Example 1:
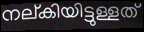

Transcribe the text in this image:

നല്കിയിട്ടുള്ളത്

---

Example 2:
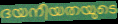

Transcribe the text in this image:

ദയനീയതയുടെ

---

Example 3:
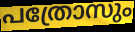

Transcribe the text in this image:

പത്രോസും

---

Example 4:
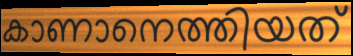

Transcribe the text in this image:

കാണാനെത്തിയത്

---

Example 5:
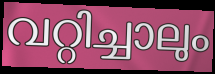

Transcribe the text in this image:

വറ്റിച്ചാലും